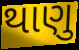
થાણુ